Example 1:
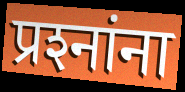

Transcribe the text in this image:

प्रश्‍नांना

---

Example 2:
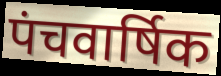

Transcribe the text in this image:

पंचवार्षिक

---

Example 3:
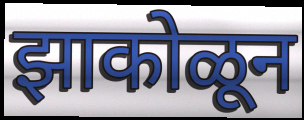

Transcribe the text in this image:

झाकोळून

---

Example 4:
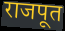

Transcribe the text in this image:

राजपूत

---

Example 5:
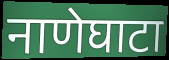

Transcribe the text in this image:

नाणेघाटा